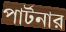
পার্টনার